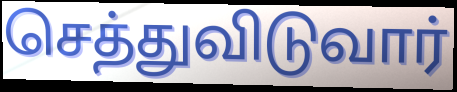
செத்துவிடுவார்